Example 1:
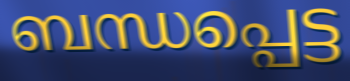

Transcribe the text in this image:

ബന്ധപ്പെട്ട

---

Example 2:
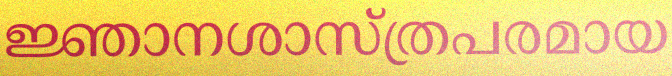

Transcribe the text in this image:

ജ്ഞാനശാസ്ത്രപരമായ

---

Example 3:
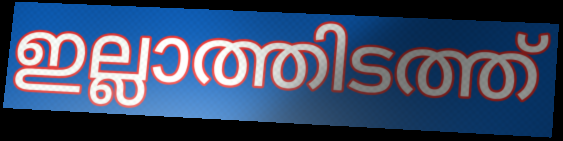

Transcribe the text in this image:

ഇല്ലാത്തിടത്ത്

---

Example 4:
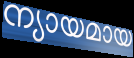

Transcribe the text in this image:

ന്യായമായ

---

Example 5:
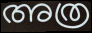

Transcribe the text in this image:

അത്ര